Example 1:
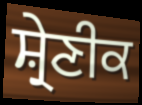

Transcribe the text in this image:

ਸ਼੍ਰੇਣੀਕ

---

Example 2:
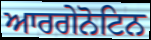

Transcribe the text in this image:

ਆਰਗੇਨੋਟਿਨ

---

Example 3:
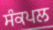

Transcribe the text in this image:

ਸੰਕਪਲ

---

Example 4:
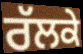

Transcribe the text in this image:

ਰੱਲਕੇ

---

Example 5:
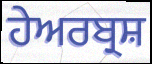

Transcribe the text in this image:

ਹੇਅਰਬ੍ਰਸ਼